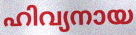
ഹിവ്യനായ